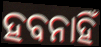
ହବନାହିଁ